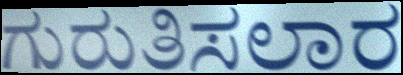
ಗುರುತಿಸಲಾರ